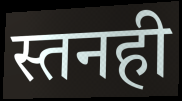
स्तनही